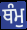
ਥੰਮੁ